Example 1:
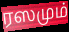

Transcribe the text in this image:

ரஸமும்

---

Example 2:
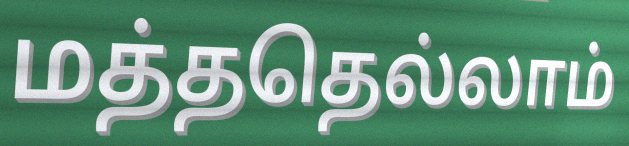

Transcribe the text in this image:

மத்ததெல்லாம்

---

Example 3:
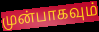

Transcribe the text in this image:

முன்பாகவும்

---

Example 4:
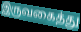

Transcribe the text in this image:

இருவகைத்து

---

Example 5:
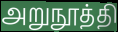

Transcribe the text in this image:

அறுநூத்தி